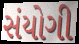
સંયોગી